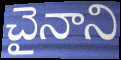
చైనాని